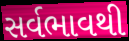
સર્વભાવથી